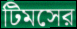
টিমসের